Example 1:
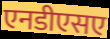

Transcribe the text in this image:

एनडीएसए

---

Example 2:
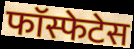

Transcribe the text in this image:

फॉस्फेटेस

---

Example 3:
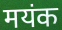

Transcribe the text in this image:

मयंक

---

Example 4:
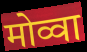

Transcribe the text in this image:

मोव्वा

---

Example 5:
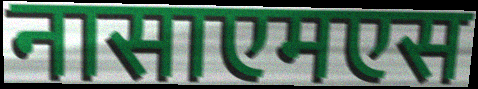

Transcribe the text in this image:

नासाएमएस